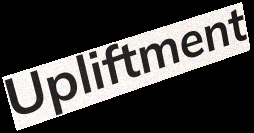
Upliftment